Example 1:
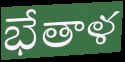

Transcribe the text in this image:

భేతాళ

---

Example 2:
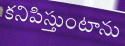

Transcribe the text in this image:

కనిపిస్తుంటాను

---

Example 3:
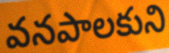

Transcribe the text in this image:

వనపాలకుని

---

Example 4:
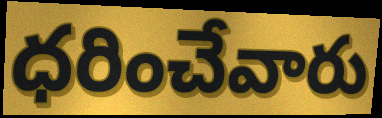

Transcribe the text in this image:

ధరించేవారు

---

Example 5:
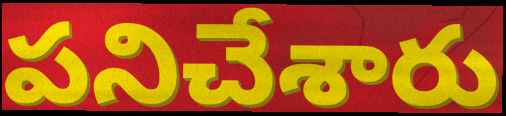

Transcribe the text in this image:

పనిచేశారు